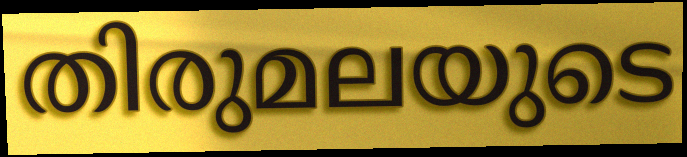
തിരുമലയുടെ